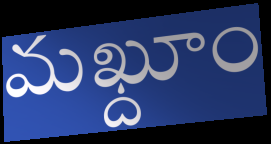
మఖ్దూం